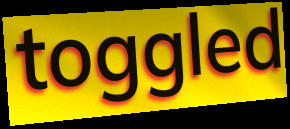
toggled